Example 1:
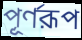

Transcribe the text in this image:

পূর্ণরূপ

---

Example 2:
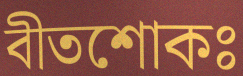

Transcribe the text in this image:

বীতশোকঃ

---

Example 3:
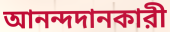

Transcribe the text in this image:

আনন্দদানকারী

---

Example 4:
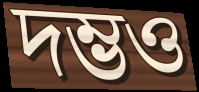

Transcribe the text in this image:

দম্ভও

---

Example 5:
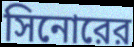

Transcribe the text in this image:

সিনোরের